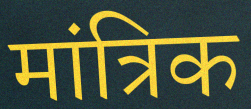
मांत्रिक